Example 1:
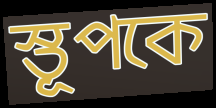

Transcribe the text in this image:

স্তূপকে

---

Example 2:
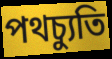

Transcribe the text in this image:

পথচ্যুতি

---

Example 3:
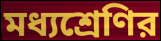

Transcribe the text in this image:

মধ্যশ্রেণির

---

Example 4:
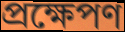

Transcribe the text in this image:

প্রক্ষেপণ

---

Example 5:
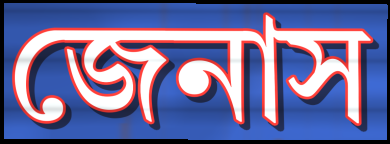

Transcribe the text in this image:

জেনাস